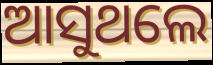
ଆସୁଥଲେ